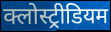
क्लोस्ट्रीडियम